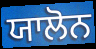
ਯਾਲੋਨ